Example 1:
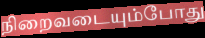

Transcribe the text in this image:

நிறைவடையும்போது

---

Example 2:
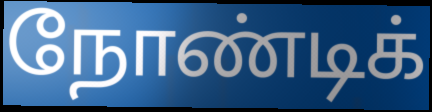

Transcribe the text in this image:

நோண்டிக்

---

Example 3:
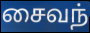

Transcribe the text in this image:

சைவந்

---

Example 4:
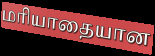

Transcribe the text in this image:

மரியாதையான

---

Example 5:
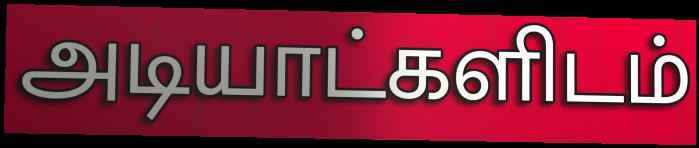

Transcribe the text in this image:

அடியாட்களிடம்